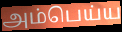
அம்பெய்ய